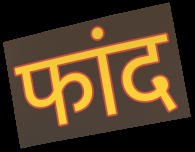
फांद